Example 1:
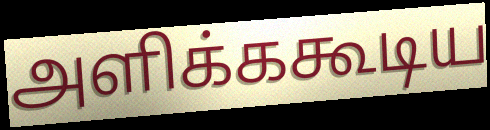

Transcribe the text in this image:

அளிக்ககூடிய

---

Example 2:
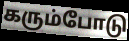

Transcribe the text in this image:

கரும்போடு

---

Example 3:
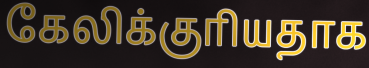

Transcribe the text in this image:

கேலிக்குரியதாக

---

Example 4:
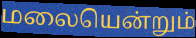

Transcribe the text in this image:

மலையென்றும்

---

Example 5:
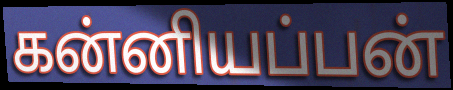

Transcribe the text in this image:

கன்னியப்பன்